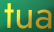
tua